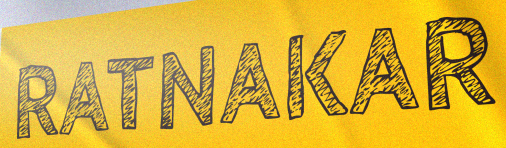
RATNAKAR